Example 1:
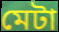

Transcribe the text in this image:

মেটা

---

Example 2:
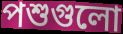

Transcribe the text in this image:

পশুগুলো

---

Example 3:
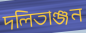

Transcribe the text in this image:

দলিতাঞ্জন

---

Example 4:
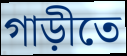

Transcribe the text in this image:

গাড়ীতে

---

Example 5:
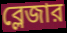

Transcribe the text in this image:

ব্লেজার